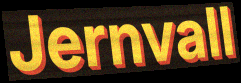
Jernvall